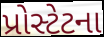
પ્રોસ્ટેટના